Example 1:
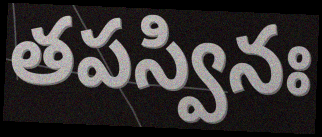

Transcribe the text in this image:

తపస్వినః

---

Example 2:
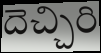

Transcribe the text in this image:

దెచ్చిరి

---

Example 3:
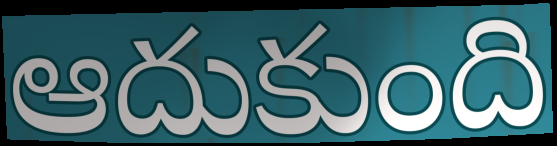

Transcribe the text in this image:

ఆదుకుంది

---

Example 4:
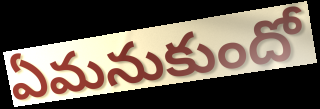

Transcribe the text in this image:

ఏమనుకుందో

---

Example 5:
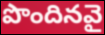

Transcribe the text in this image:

పొందినవై